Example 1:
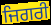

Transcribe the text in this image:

ਜਿਗਰੀ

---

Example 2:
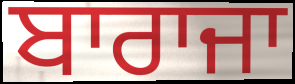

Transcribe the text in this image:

ਬਾਰਾਜਾ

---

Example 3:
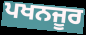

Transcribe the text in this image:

ਪਖਨਜੂਰ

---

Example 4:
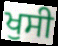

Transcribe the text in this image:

ਖੁਸੀ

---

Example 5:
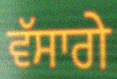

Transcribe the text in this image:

ਵੱਸਾਗੇ